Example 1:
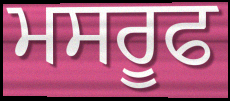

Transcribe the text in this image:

ਮਸਰੂਫ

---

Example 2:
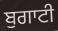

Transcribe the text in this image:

ਬੁਗਾਟੀ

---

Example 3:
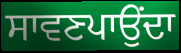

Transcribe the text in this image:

ਸਾਵਣਪਾਉਂਦਾ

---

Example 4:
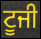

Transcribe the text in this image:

ਟੂਜੀ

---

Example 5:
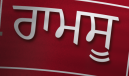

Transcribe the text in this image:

ਰਾਮਸੂ